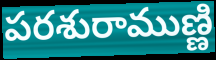
పరశురాముణ్ణి